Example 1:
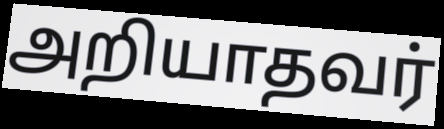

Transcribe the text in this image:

அறியாதவர்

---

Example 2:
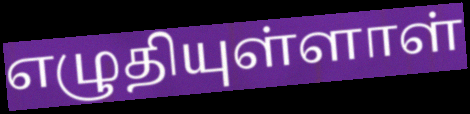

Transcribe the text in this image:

எழுதியுள்ளாள்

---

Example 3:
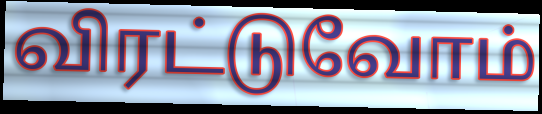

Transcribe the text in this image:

விரட்டுவோம்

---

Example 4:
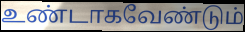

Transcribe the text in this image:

உண்டாகவேண்டும்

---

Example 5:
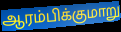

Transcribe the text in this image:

ஆரம்பிக்குமாறு